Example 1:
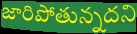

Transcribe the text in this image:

జారిపోతున్నదని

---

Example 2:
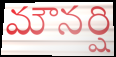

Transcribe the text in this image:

మౌనర్షి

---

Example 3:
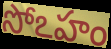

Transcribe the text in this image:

సోఽహం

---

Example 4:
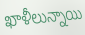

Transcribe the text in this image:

ఖాళీలున్నాయి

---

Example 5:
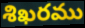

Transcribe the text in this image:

శిఖరము